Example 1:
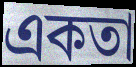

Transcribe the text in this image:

একতা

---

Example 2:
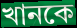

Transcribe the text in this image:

খানকে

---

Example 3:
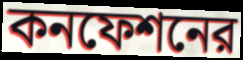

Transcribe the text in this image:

কনফেশনের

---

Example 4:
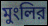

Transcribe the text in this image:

মুংলির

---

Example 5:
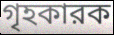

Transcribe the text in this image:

গৃহকারক